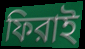
ফিরাই